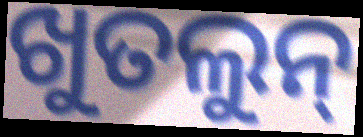
ଖୁତଲୁନ୍